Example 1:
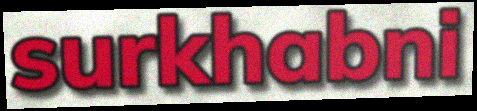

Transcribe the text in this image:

surkhabni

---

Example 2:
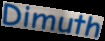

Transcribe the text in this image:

Dimuth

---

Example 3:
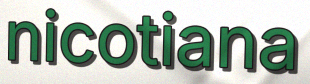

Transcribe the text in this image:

nicotiana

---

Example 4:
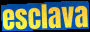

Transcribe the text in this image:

esclava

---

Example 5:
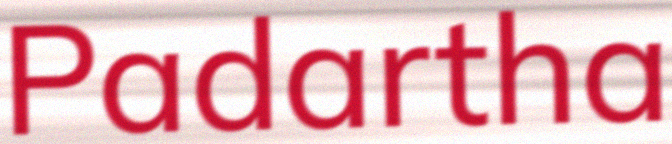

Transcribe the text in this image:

Padartha